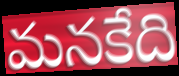
మనకేది